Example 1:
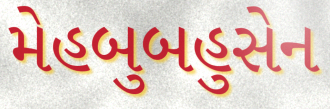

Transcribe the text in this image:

મેહબુબહુસેન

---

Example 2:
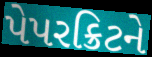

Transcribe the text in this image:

પેપરક્રિટને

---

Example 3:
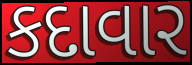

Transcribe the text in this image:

કદાવાર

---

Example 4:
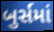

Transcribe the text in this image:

બુર્સમાં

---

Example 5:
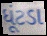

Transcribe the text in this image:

ધૂંટડા